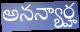
అనన్యార్హ